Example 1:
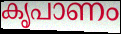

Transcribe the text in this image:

കൃപാണം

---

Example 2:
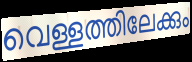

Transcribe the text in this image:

വെള്ളത്തിലേക്കും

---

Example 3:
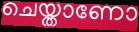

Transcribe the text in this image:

ചെയ്താണോ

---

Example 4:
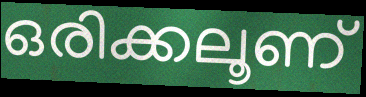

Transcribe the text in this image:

ഒരിക്കലൂണ്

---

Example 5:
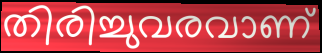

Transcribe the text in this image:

തിരിച്ചുവരവാണ്